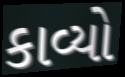
કાવ્યો